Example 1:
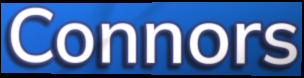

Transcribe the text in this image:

Connors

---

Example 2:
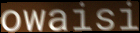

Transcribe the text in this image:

owaisi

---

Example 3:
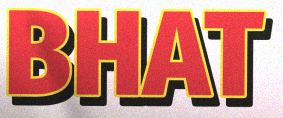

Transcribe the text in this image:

BHAT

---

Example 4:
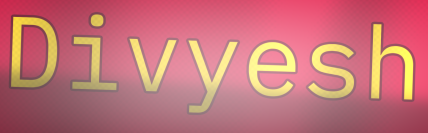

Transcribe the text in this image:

Divyesh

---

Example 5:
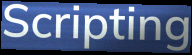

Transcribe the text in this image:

Scripting